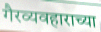
गैरव्यवहाराच्या